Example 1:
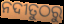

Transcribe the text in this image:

ନଦୀତୁଠରୁ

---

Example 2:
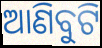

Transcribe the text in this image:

ଆଣିବୁଟି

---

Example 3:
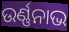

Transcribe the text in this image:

ଉର୍ଣ୍ଣନାଭ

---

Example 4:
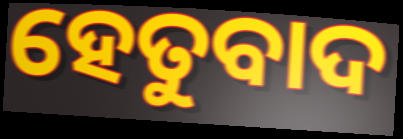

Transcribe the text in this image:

ହେତୁବାଦ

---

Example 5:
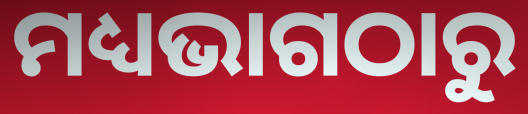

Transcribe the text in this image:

ମଧ୍ୟଭାଗଠାରୁ